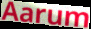
Aarum